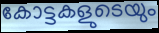
കോട്ടകളുടെയും